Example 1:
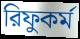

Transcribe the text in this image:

রিফুকর্ম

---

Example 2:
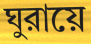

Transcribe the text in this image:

ঘুরায়ে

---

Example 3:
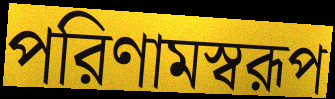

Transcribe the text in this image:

পরিণামস্বরূপ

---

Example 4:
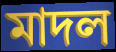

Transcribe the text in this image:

মাদল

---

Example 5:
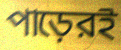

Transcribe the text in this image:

পাড়েরই